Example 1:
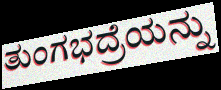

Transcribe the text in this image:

ತುಂಗಭದ್ರೆಯನ್ನು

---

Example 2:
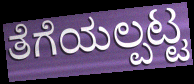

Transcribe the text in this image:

ತೆಗೆಯಲ್ಪಟ್ಟ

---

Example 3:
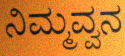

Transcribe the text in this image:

ನಿಮ್ಮವ್ವನ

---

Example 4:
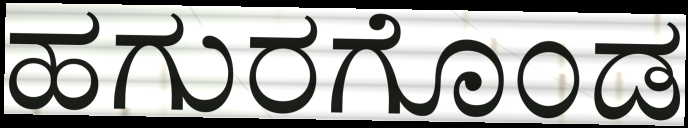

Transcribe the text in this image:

ಹಗುರಗೊಂಡ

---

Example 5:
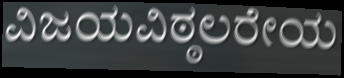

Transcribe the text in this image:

ವಿಜಯವಿಠ್ಠಲರೇಯ